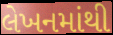
લેખનમાંથી